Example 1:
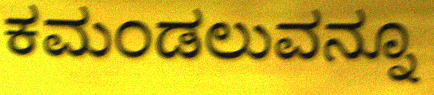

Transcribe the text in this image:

ಕಮಂಡಲುವನ್ನೂ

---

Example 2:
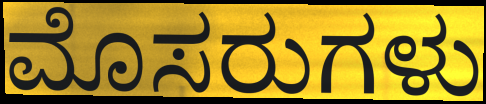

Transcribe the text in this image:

ಮೊಸರುಗಳು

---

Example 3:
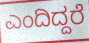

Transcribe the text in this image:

ಎಂದಿದ್ದರೆ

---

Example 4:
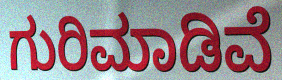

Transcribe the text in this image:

ಗುರಿಮಾಡಿವೆ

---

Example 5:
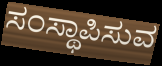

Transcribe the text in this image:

ಸಂಸ್ಥಾಪಿಸುವ